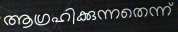
ആഗ്രഹിക്കുന്നതെന്ന്